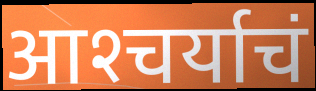
आश्चर्याचं